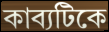
কাব্যটিকে